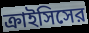
ক্রাইসিসের